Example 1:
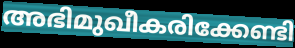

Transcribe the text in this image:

അഭിമുഖീകരിക്കേണ്ടി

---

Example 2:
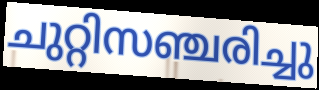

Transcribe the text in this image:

ചുറ്റിസഞ്ചരിച്ചു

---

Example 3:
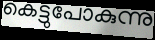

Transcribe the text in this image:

കെട്ടുപോകുന്നു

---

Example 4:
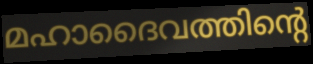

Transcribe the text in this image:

മഹാദൈവത്തിന്റെ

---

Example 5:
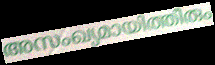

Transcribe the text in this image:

അസംഖ്യമായിത്തീരും